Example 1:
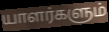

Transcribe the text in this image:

யாளர்களும்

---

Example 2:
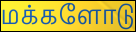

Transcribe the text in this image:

மக்களோடு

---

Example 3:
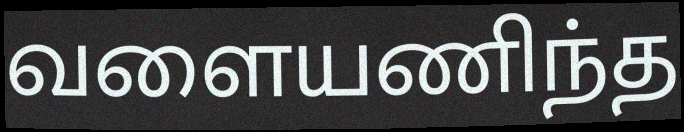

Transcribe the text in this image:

வளையணிந்த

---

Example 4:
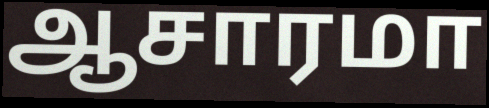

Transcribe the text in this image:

ஆசாரமா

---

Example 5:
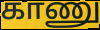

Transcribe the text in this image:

காணு